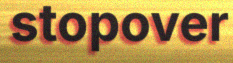
stopover